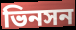
ভিনসন